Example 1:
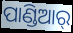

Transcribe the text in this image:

ପାଣ୍ଡିଆର୍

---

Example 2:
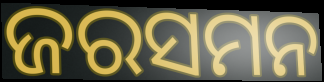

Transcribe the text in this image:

ଜରସମନ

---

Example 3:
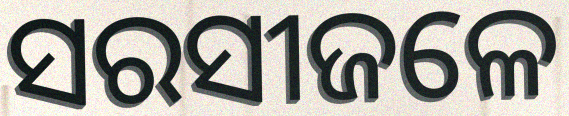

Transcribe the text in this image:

ସରସୀଜଳେ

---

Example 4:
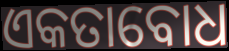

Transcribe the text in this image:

ଏକତାବୋଧ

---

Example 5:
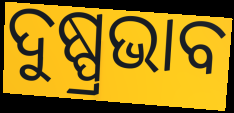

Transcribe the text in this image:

ଦୁଷ୍ପ୍ରଭାବ